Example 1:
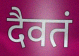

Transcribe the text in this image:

दैवतं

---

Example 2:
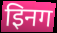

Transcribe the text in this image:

इिनग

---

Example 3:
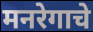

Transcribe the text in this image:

मनरेगाचे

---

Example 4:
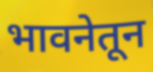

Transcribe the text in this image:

भावनेतून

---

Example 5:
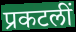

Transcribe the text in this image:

प्रकटलीं